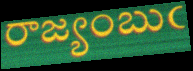
రాజ్యంబుఁ